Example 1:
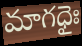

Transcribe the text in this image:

మాగధైః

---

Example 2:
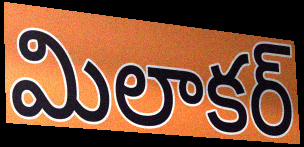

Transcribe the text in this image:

మిలాకర్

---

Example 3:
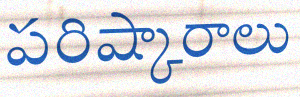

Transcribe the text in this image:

పరిష్కారాలు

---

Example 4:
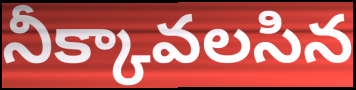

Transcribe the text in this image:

నీక్కావలసిన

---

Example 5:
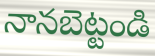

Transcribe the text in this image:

నానబెట్టండి